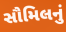
સૌમિલનું